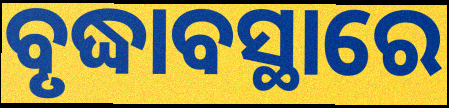
ବୃଦ୍ଧାବସ୍ଥାରେ